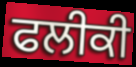
ਫਲੀਕੀ